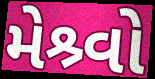
મેશ્ર્વો